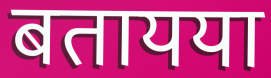
बतायया